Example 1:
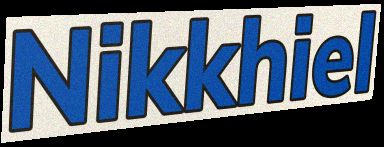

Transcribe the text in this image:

Nikkhiel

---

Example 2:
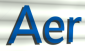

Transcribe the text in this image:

Aer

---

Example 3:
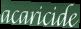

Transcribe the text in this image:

acaricide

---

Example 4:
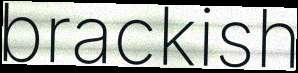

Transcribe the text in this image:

brackish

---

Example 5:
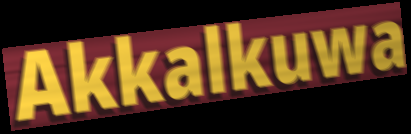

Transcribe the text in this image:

Akkalkuwa